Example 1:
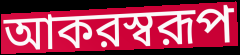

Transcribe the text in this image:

আকরস্বরূপ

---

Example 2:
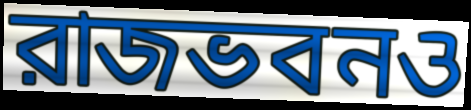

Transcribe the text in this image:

রাজভবনও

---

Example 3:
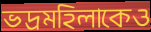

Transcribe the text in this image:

ভদ্রমহিলাকেও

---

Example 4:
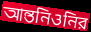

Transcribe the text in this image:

আন্তনিওনির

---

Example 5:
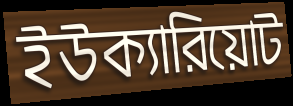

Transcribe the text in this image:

ইউক্যারিয়োট